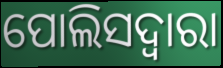
ପୋଲିସଦ୍ୱାରା